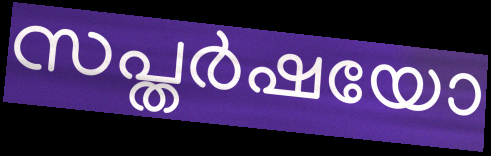
സപ്തർഷയോ